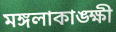
মঙ্গলাকাঙ্ক্ষী